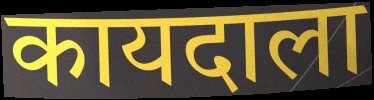
कायदाला